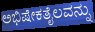
ಅಭಿಷೇಕತೈಲವನ್ನು